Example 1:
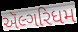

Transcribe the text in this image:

ઍલ્ગરિધમ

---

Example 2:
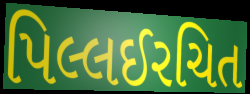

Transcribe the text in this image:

પિલ્લઈરચિત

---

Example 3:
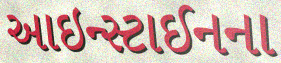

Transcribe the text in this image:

આઇન્સ્ટાઈનના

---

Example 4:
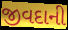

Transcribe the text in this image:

જીવદાની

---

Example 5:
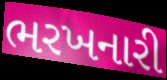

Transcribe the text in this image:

ભરખનારી